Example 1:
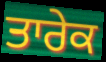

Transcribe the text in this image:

ਤਾਰੇਕ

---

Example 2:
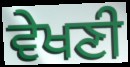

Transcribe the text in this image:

ਵੇਖਣੀ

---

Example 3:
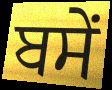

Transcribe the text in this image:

ਬਸੇਂ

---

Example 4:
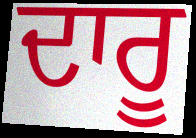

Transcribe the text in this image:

ਦਾਰੂ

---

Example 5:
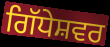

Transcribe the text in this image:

ਗਿੱਧੇਸ਼ਵਰ